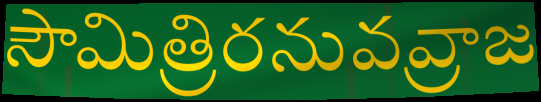
సౌమిత్రిరనువవ్రాజ